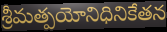
శ్రీమత్పయోనిధినికేతన